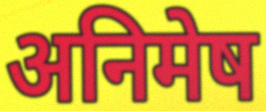
अनिमेष